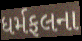
ધર્મફલના